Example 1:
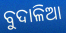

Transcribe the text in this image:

ବୁଦାଳିଆ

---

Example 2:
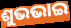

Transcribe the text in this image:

ଶୁଭଭାଇ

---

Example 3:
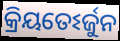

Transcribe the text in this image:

କ୍ରିୟତେଽର୍ଜୁନ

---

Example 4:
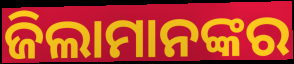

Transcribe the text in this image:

ଜିଲାମାନଙ୍କର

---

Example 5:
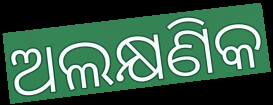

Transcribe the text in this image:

ଅଲକ୍ଷଣିକ